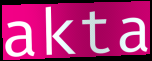
akta